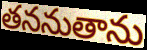
తననుతాను